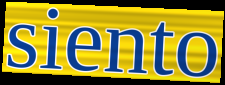
siento